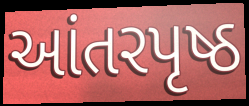
આંતરપૃષ્ઠ